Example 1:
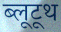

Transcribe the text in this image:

ब्लूटूथ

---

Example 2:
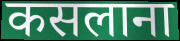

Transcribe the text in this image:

कसलाना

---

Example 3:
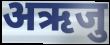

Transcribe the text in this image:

अऋजु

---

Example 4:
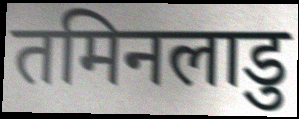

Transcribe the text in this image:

तमिनलाडु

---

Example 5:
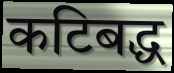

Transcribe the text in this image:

कटिबद्ध